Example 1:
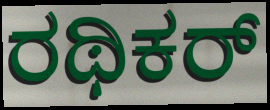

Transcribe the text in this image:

ರಥಿಕರ್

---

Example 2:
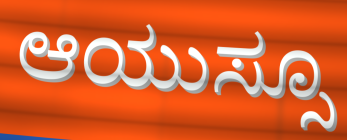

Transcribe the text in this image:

ಆಯುಸ್ಸೂ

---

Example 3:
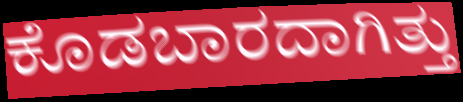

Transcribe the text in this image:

ಕೊಡಬಾರದಾಗಿತ್ತು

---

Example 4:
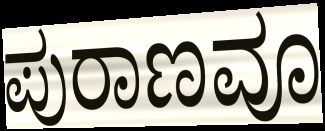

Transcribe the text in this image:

ಪುರಾಣವೂ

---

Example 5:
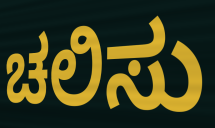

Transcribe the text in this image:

ಚಲಿಸು